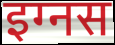
इग्नस